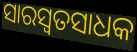
ସାରସ୍ଵତସାଧକ